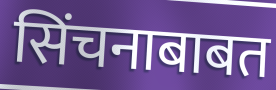
सिंचनाबाबत